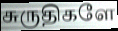
சுருதிகளே